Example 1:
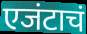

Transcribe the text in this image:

एजंटाचं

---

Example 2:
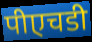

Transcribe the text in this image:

पीएचडी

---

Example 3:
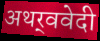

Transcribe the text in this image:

अथर्ववेदी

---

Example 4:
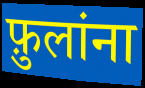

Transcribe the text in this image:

फ़ुलांना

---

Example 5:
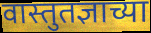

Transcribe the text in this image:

वास्तुतज्ञाच्या